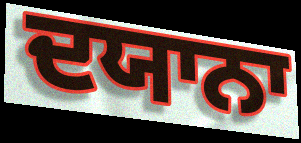
ਦਯਾਨਾ